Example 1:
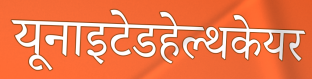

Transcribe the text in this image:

यूनाइटेडहेल्थकेयर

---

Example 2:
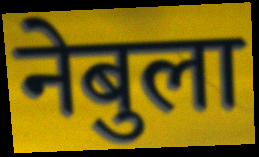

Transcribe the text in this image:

नेबुला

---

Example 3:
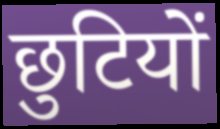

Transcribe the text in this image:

छुटियों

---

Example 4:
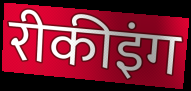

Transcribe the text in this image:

रीकीइंग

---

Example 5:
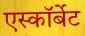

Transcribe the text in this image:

एस्कॉर्बेट